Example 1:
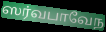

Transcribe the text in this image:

ஸர்வபாவேந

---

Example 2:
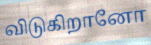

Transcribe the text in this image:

விடுகிறானோ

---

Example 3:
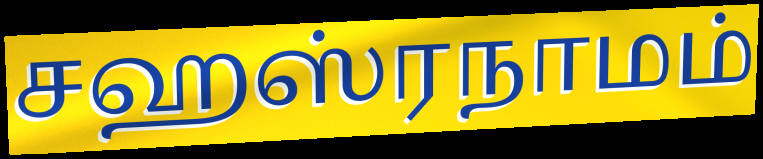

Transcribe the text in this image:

சஹஸ்ரநாமம்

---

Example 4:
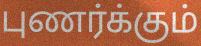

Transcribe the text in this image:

புணர்க்கும்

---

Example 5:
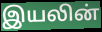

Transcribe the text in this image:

இயலின்